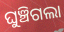
ଘୁଞ୍ଚିଗଲା